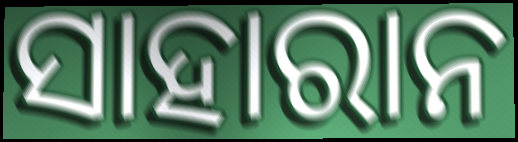
ସାହାରାନ